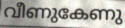
വീണുകേണു